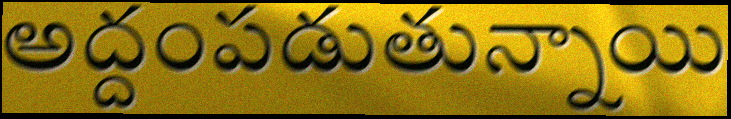
అద్దంపడుతున్నాయి